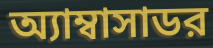
অ্যাম্বাসাডর